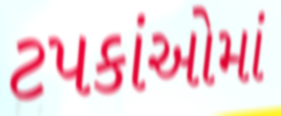
ટપકાંઓમાં